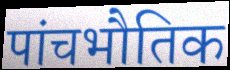
पांचभौतिक